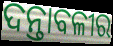
ଦନ୍ତାବଳୀର